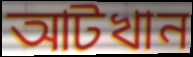
আটখান